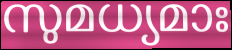
സുമധ്യമാഃ